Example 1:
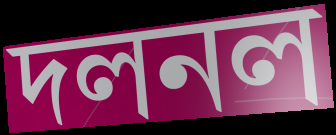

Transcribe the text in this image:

দলনল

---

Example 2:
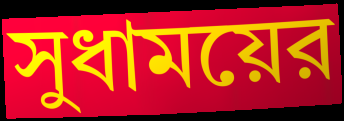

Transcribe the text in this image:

সুধাময়ের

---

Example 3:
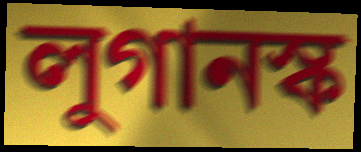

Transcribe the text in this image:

লুগানস্ক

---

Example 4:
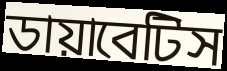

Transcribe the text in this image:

ডায়াবেটিস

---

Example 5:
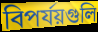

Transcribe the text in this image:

বিপর্যয়গুলি